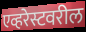
एव्हरेस्टवरील